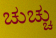
ಚುಚ್ಚು